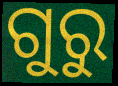
ଗୁରୁ